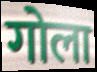
गोला